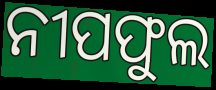
ନୀପଫୁଲ